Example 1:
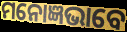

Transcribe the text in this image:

ମନୋଜ୍ଞଭାବେ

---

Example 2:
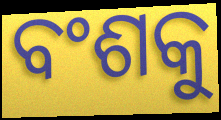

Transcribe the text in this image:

ବଂଶକୁ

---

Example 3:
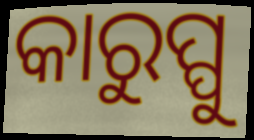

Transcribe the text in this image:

କାରୁପ୍ପୁ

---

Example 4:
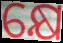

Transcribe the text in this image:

କ୍ଷେ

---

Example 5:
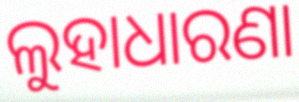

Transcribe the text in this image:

ଲୁହାଧାରଣା